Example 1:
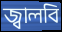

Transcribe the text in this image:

জ্বালবি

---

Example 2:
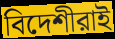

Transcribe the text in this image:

বিদেশীরাই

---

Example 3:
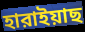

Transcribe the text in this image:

হারাইয়াছ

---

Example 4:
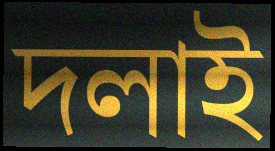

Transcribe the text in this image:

দলাই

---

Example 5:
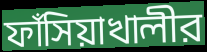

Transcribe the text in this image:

ফাঁসিয়াখালীর